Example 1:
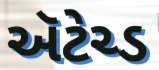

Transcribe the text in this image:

ઍટેચ્ડ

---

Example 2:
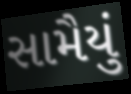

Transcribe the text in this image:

સામૈયું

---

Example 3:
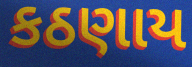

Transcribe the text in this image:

કઠણાય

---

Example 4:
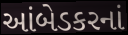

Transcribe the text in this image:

આંબેડકરનાં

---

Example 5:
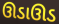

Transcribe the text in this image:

ઊડાઊડ